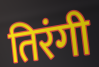
तिरंगी